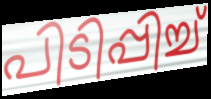
പിടിപ്പിച്ച്